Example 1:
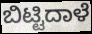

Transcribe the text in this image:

ಬಿಟ್ಟಿದಾಳೆ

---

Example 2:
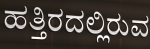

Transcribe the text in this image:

ಹತ್ತಿರದಲ್ಲಿರುವ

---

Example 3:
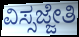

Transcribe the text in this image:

ವಿಸ್ಸಜ್ಜೇತಿ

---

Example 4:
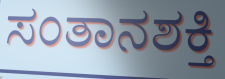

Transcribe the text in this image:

ಸಂತಾನಶಕ್ತಿ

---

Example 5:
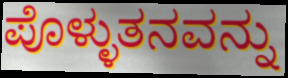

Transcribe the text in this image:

ಪೊಳ್ಳುತನವನ್ನು